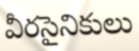
వీరసైనికులు